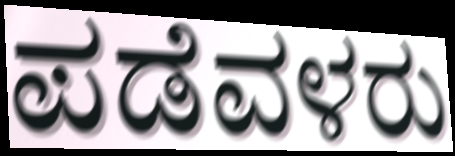
ಪಡೆವಳರು